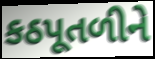
કઠપૂતળીને